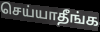
செய்யாதீங்க